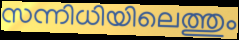
സന്നിധിയിലെത്തും